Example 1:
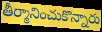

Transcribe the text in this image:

తీర్మానించుకొన్నారు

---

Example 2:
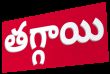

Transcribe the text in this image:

తగ్గాయి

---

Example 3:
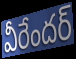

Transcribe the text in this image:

వీరేందర్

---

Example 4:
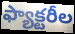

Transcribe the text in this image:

ఫ్యాక్టరీల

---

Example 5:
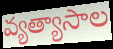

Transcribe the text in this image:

వ్యత్యాసాల